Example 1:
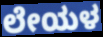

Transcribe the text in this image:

ಲೇಯಳ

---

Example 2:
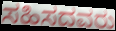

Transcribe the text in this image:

ಸಹಿಸದವರು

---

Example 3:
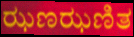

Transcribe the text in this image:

ಝಣಝಣಿತ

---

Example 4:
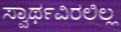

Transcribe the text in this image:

ಸ್ವಾರ್ಥವಿರಲಿಲ್ಲ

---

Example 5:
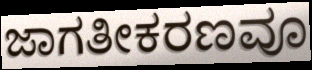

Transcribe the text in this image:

ಜಾಗತೀಕರಣವೂ